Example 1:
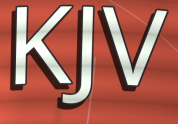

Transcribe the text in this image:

KJV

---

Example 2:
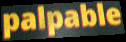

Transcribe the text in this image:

palpable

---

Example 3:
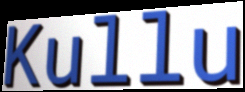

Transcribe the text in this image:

Kullu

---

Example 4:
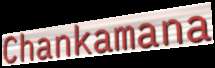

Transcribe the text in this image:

Chankamana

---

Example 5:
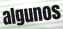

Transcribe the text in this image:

algunos